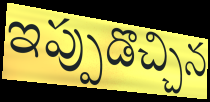
ఇప్పుడొచ్చిన